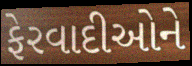
ફેરવાદીઓને